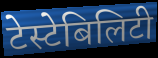
टेस्टेबिलिटी